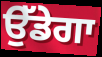
ਉੱਡੇਗਾ